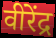
वीरेंद्र